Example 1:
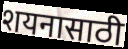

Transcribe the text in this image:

शयनासाठी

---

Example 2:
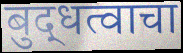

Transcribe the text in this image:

बुद्धत्वाचा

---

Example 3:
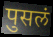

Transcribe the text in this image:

पुसलं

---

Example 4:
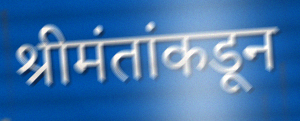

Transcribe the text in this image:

श्रीमंतांकडून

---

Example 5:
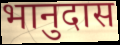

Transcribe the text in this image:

भानुदास